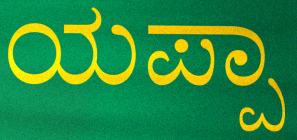
ಯಪ್ಪಾ